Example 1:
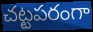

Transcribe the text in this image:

చట్టపరంగా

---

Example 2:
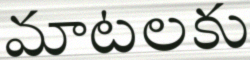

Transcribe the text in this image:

మాటలకు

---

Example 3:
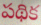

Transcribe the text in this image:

పథిక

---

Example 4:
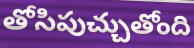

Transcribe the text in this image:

తోసిపుచ్చుతోంది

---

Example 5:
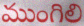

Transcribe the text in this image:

ముంగిలి